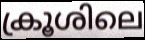
ക്രൂശിലെ